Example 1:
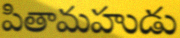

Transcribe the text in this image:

పితామహుడు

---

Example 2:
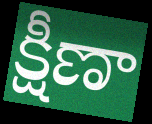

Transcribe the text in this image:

క్షీణా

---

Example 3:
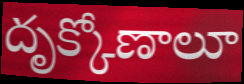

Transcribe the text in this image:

దృక్కోణాలూ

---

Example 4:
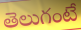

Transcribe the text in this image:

తెలుగంటే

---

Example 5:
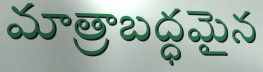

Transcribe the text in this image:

మాత్రాబద్ధమైన